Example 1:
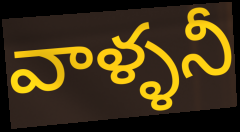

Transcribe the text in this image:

వాళ్ళనీ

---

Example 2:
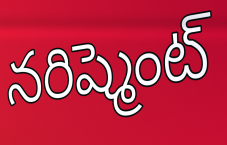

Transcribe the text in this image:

నరిష్మెంట్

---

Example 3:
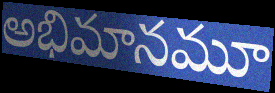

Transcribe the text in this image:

అభిమానమూ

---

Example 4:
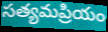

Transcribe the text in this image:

సత్యమప్రియం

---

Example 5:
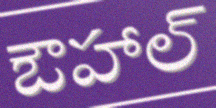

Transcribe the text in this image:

ఔహాల్